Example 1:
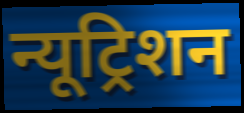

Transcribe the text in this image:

न्यूट्रिशन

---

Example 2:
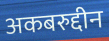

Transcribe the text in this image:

अकबरुद्दीन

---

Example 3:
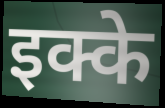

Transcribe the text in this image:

इक्के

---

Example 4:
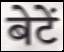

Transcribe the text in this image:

बेटें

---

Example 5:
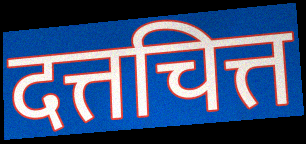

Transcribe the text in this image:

दत्तचित्त